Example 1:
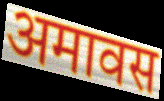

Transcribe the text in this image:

अमावस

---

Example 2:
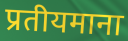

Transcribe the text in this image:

प्रतीयमाना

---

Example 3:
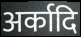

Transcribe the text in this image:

अर्कादि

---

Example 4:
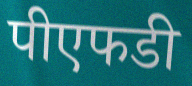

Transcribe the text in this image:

पीएफडी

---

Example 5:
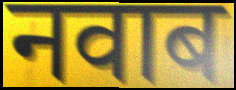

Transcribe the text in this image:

नवाब